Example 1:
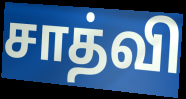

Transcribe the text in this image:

சாத்வி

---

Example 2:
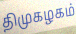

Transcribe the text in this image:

திமுகழகம்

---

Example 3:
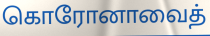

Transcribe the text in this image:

கொரோனாவைத்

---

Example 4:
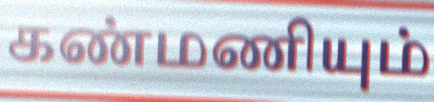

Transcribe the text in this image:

கண்மணியும்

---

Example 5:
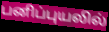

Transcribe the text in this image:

பனிப்புயலில்